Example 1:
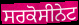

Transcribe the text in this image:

ਸਰਕੋਸੀਨੇਟ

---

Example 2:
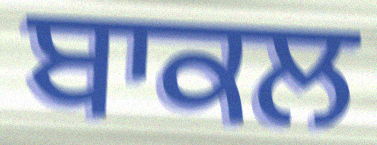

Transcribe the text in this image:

ਬਾਕਲ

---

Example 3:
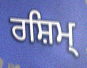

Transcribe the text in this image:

ਰਸ਼ਿਮ੍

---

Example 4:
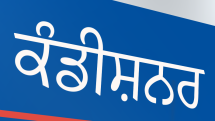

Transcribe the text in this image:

ਕੰਡੀਸ਼ਨਰ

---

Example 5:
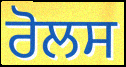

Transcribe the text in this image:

ਰੋਲਸ